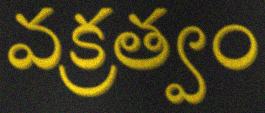
వక్రత్వం